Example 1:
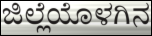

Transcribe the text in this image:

ಜಿಲ್ಲೆಯೊಳಗಿನ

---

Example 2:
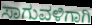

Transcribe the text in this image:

ಸಾಗುವಳಿಗಾಗಿ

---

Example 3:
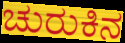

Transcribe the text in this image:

ಚುರುಕಿನ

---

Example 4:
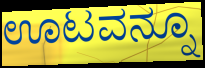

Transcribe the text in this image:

ಊಟವನ್ನೂ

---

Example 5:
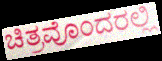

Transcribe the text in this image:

ಚಿತ್ರವೊಂದರಲ್ಲಿ